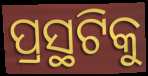
ପ୍ରସ୍ଥଟିକୁ